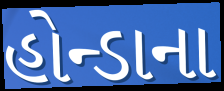
હોન્ડાના